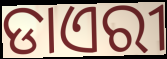
ଡାଏରୀ